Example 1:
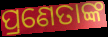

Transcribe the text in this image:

ପ୍ରଣେତାଙ୍କ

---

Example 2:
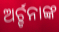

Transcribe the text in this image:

ଅର୍ଚ୍ଚନାଙ୍କ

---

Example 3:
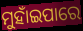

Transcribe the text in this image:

ମୁହାଁଇପାରେ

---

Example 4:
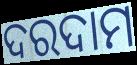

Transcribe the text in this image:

ଦରଦାମ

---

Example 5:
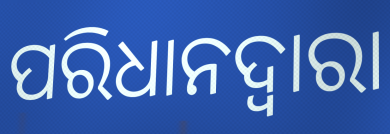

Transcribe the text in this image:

ପରିଧାନଦ୍ୱାରା